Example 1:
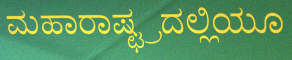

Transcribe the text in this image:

ಮಹಾರಾಷ್ಟ್ರದಲ್ಲಿಯೂ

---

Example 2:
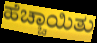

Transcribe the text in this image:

ಹೆಚ್ಚಾಯಿತು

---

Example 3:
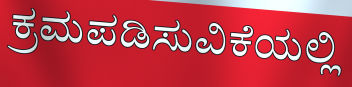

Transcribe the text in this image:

ಕ್ರಮಪಡಿಸುವಿಕೆಯಲ್ಲಿ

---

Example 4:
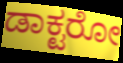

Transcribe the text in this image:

ಡಾಕ್ಟರೋ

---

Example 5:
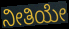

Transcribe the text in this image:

ನೀತಿಯೇ